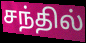
சந்தில்